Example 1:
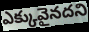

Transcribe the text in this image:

ఎక్కువైనదని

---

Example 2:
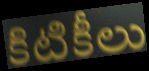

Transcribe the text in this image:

కిటికీలు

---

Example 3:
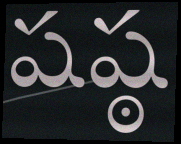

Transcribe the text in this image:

షష్ఠ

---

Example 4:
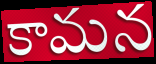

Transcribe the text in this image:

కామన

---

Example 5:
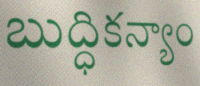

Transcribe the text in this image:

బుద్ధికన్యాం